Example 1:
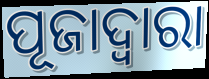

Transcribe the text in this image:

ପୂଜାଦ୍ଵାରା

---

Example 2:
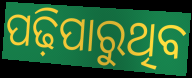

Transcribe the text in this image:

ପଢ଼ିପାରୁଥିବ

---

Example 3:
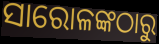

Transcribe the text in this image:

ସାରୋଳଙ୍କଠାରୁ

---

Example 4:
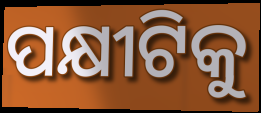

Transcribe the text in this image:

ପକ୍ଷୀଟିକୁ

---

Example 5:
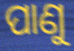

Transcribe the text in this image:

ପାଣୁ